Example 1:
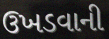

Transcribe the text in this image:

ઉખડવાની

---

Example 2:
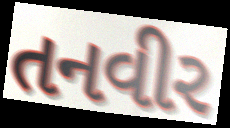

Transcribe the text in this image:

તનવીર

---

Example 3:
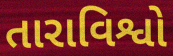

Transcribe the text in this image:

તારાવિશ્વો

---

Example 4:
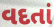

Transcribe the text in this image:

વદતાં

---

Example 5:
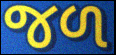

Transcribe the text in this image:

જળ